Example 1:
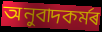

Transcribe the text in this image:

অনুবাদকৰ্মৰ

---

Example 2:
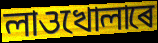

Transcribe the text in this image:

লাওখোলাৰে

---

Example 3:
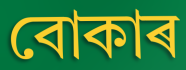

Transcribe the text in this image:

বোকাৰ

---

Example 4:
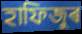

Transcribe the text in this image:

হাফিজুৰ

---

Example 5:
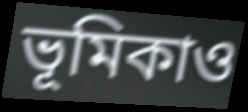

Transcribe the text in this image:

ভূমিকাও